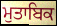
ਮੁਤਾਬਿਕ